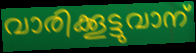
വാരിക്കൂട്ടുവാന്